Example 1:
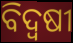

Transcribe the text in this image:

ବିଦ୍ୱଷୀ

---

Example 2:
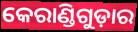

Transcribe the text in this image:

କେରାଣ୍ଡିଗୁଡ଼ାର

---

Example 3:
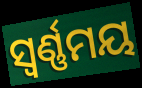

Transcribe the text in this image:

ସ୍ଵର୍ଣ୍ଣମୟ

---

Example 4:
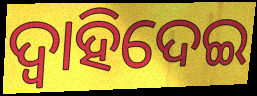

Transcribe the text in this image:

ଦ୍ୱାହିଦେଇ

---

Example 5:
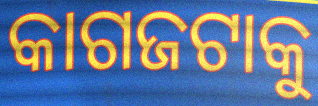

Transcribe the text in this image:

କାଗଜଟାକୁ